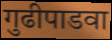
गुढीपाडवा